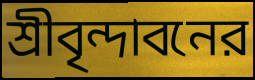
শ্রীবৃন্দাবনের